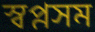
স্বপ্নসম